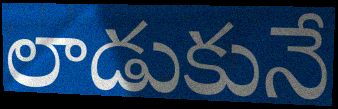
లాడుకునే